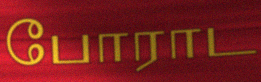
போராட